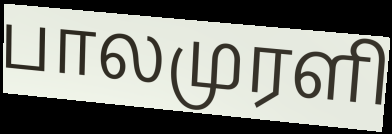
பாலமுரளி